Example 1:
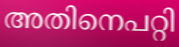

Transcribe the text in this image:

അതിനെപറ്റി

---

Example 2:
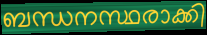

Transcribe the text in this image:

ബന്ധനസ്ഥരാക്കി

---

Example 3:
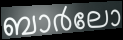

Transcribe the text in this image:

ബാർലോ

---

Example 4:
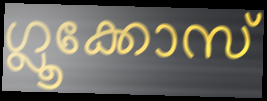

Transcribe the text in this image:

ഗ്ലൂക്കോസ്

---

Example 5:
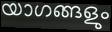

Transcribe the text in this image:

യാഗങ്ങളും